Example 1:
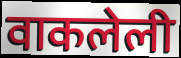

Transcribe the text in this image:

वाकलेली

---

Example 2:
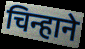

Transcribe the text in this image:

चिन्हाने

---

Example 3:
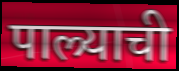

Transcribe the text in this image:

पाल्याची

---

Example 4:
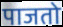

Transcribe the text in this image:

पाजतो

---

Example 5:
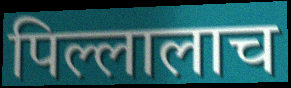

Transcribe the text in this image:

पिल्लालाच